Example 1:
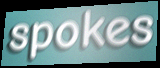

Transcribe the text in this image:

spokes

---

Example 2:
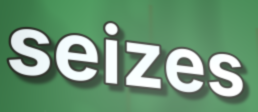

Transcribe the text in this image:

seizes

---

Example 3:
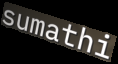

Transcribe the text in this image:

sumathi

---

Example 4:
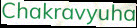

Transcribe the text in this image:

Chakravyuha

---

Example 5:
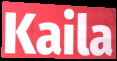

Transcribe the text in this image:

Kaila